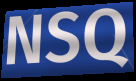
NSQ